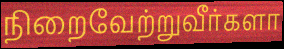
நிறைவேற்றுவீர்களா